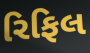
રિફિલ